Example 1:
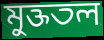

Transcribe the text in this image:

মুক্ততল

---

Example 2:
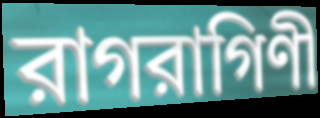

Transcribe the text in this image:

রাগরাগিণী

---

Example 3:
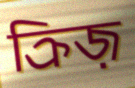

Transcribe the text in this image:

ক্রিজ়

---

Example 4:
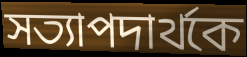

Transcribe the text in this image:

সত্যাপদার্থকে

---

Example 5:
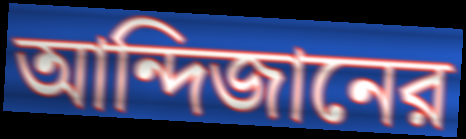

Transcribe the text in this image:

আন্দিজানের